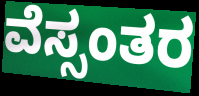
ವೆಸ್ಸಂತರ